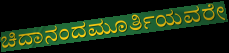
ಚಿದಾನಂದಮೂರ್ತಿಯವರೇ